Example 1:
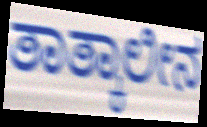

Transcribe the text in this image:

ತಾತ್ಕಾಲೀನ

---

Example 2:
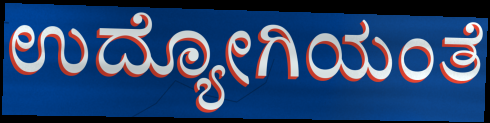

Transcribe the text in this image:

ಉದ್ಯೋಗಿಯಂತೆ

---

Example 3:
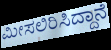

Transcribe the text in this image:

ಮೀಸಲಿರಿಸಿದ್ದಾನೆ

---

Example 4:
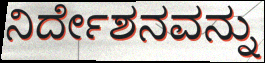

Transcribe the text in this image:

ನಿರ್ದೇಶನವನ್ನು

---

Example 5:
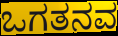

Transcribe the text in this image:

ಒಗತನವ